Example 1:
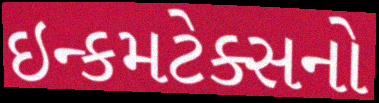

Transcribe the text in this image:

ઇન્કમટેક્સનો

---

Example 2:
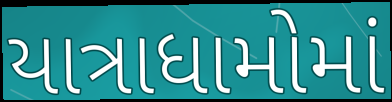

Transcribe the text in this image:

યાત્રાધામોમાં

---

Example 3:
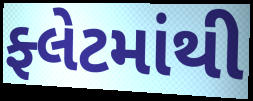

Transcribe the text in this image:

ફ્લેટમાંથી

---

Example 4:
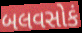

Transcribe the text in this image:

બલવસોકં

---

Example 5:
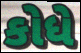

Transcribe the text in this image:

કોધે